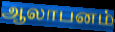
ஆலாபனம்